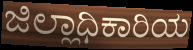
ಜಿಲ್ಲಾಧಿಕಾರಿಯ